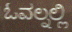
ಓವಲ್ನಲ್ಲಿ